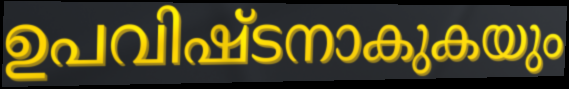
ഉപവിഷ്ടനാകുകയും